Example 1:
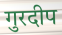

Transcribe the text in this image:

गुरदीप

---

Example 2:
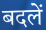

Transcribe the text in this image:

बदलें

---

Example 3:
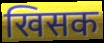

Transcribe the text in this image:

खिसक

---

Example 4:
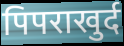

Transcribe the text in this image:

पिपराखुर्द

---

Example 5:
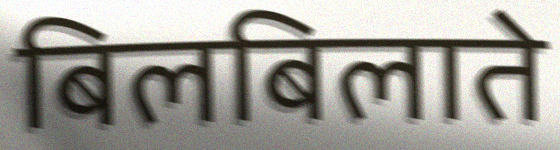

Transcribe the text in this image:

बिलबिलाते